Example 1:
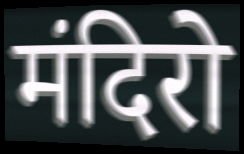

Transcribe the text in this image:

मंदिरो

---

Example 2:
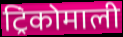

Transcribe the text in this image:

ट्रिंकोमाली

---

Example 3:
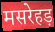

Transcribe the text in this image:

मसरेहड़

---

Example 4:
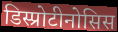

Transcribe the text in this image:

डिस्प्रोटीनोसिस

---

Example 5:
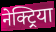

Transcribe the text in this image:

नेक्ट्रिया